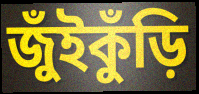
জুঁইকুঁড়ি